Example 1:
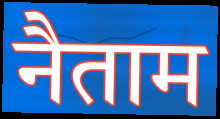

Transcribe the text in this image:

नैताम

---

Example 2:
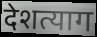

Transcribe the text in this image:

देशत्याग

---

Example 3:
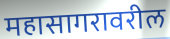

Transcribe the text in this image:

महासागरावरील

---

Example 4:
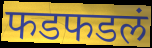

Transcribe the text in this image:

फडफडलं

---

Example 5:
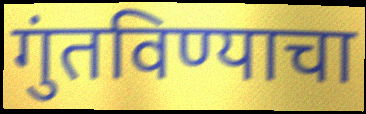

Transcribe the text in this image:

गुंतविण्याचा